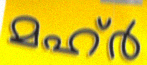
മഹ്ർ